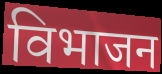
विभाजन